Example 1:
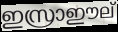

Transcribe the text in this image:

ഇസ്രാഈല്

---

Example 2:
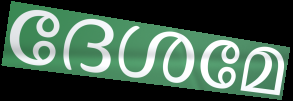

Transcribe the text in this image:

ദേശമേ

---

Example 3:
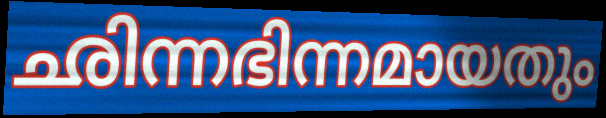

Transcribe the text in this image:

ഛിന്നഭിന്നമായതും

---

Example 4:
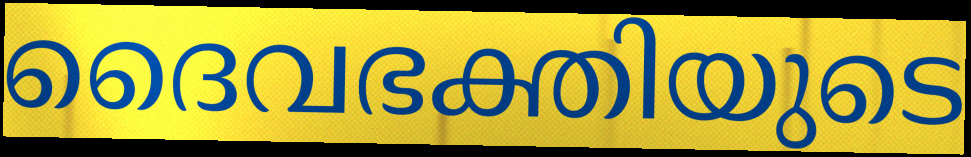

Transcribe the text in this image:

ദൈവഭക്തിയുടെ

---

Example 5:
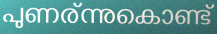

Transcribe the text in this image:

പുണര്ന്നുകൊണ്ട്